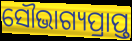
ସୌଭାଗ୍ୟପ୍ରାପ୍ତ